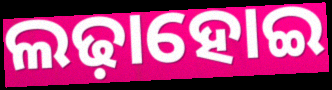
ଲଢ଼ାହୋଇ